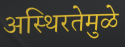
अस्थिरतेमुळे